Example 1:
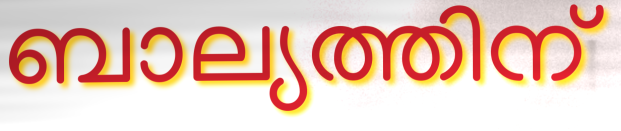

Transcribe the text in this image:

ബാല്യത്തിന്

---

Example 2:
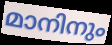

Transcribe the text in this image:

മാനിനും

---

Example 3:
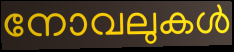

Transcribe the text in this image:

നോവലുകൾ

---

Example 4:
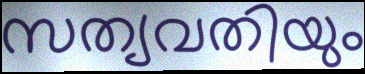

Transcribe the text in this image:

സത്യവതിയും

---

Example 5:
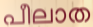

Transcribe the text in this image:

പീലാത